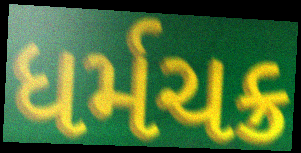
ધર્મચક્ર